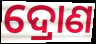
ଦ୍ରୋଣ